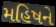
મહિષને